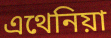
এথেনিয়া